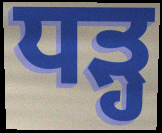
ਧੜ੍ਹ